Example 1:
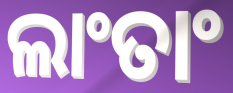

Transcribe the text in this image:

ଲାଂତାଂ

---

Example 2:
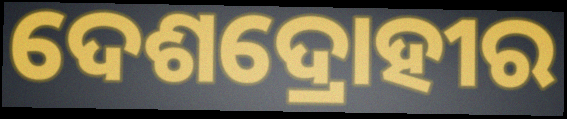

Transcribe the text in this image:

ଦେଶଦ୍ରୋହୀର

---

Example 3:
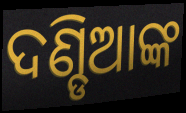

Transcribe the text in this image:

ଦଣ୍ଡିଆଙ୍କ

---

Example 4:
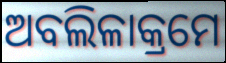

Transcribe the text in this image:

ଅବଲିଳାକ୍ରମେ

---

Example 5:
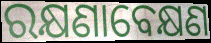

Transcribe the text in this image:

ରକ୍ଷଣାବେକ୍ଷଣ